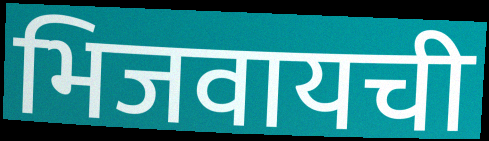
भिजवायची